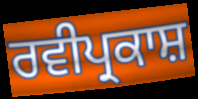
ਰਵੀਪ੍ਰਕਾਸ਼